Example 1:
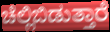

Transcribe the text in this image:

ಚೆಲ್ಲಿಬಿಡುತ್ತಾರೆ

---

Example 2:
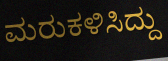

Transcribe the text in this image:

ಮರುಕಳಿಸಿದ್ದು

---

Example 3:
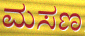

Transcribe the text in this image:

ಮಸಣ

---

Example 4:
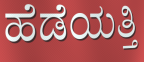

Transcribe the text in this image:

ಹೆಡೆಯತ್ತಿ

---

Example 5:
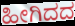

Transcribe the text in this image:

ಹೀಗಿದದ